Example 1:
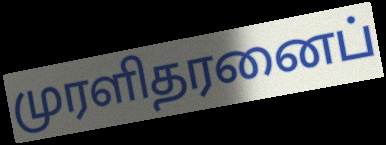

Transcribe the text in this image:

முரளிதரனைப்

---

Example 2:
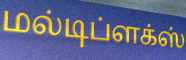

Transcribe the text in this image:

மல்டிப்ளக்ஸ்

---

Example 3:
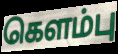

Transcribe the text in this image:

கௌம்பு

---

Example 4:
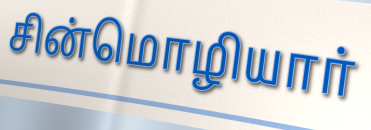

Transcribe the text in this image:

சின்மொழியார்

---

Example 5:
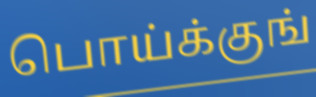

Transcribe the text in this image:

பொய்க்குங்